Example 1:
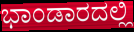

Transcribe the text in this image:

ಭಾಂಡಾರದಲ್ಲಿ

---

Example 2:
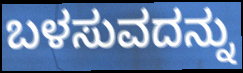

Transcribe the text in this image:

ಬಳಸುವದನ್ನು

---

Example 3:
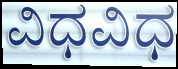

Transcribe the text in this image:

ವಿಧವಿಧ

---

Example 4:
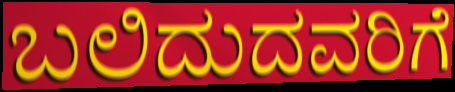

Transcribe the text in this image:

ಬಲಿದುದವರಿಗೆ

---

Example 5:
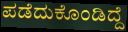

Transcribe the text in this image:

ಪಡೆದುಕೊಂಡಿದ್ದೆ